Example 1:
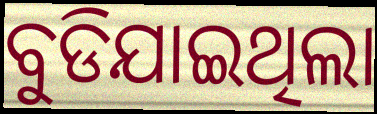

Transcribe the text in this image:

ବୁଡିଯାଇଥିଲା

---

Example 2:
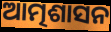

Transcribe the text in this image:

ଆତ୍ମଶାସନ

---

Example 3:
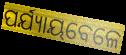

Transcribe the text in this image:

ପର୍ଯ୍ୟାୟବେଳେ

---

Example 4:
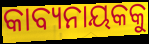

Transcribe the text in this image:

କାବ୍ୟନାୟକକୁ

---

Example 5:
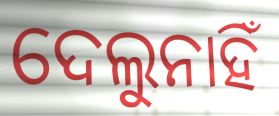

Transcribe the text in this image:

ଦେଲୁନାହିଁ